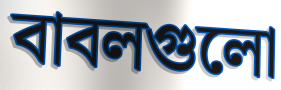
বাবলগুলো